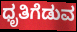
ಧೃತಿಗೆಡುವ